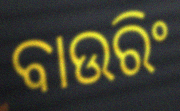
ବାଉରିଂ